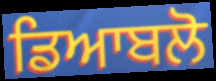
ਡਿਆਬਲੋ